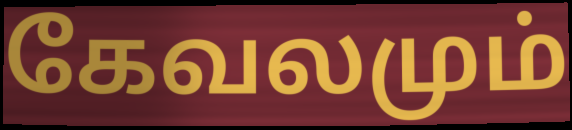
கேவலமும்